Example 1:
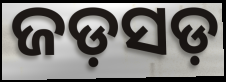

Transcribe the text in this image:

ଜଡ଼ସଡ଼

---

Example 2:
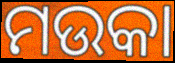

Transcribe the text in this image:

ମଉକା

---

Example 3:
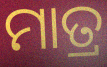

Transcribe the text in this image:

ମାତ୍ର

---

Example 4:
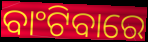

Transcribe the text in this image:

ବାଂଟିବାରେ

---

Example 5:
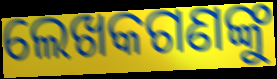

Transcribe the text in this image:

ଲେଖକଗଣଙ୍କୁ